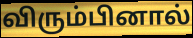
விரும்பினால்